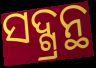
ସଦ୍ଗ୍ରନ୍ଥ